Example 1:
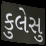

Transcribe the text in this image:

કુલેસુ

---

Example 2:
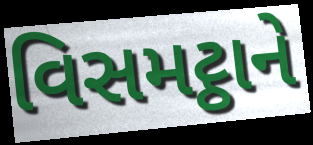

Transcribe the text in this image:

વિસમટ્ઠાને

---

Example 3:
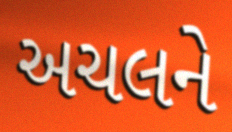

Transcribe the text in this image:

અચલને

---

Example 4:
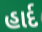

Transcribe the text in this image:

હાર્દ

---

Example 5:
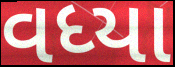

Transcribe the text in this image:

વધ્યા